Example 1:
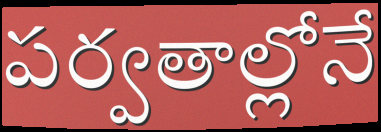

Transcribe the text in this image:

పర్వతాల్లోనే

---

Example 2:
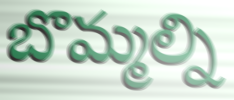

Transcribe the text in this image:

బొమ్మల్ని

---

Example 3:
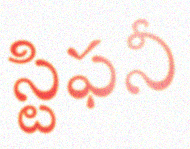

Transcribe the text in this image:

స్టిఫనీ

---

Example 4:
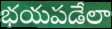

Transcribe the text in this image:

భయపడేలా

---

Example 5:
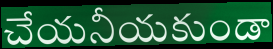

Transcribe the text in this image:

చేయనీయకుండా